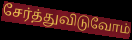
சேர்த்துவிடுவோம்